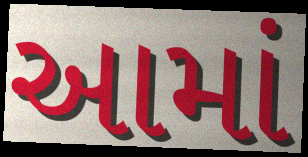
આમાં